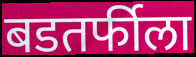
बडतर्फीला